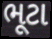
ભૂટા